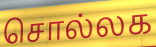
சொல்லக